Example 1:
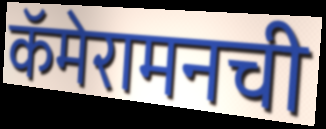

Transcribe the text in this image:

कॅमेरामनची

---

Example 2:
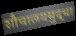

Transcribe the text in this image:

शौचालयसुद्धा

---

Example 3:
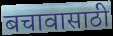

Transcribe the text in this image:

बचावासाठी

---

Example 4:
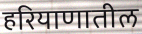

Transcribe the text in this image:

हरियाणातील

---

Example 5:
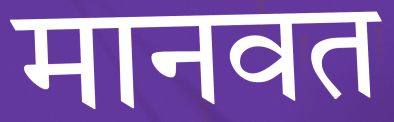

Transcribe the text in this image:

मानवत